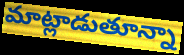
మాట్లాడుతూన్నా